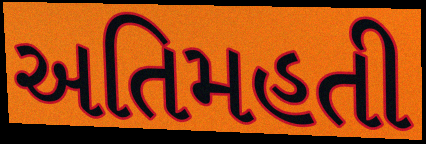
અતિમહતી